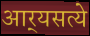
आर्यसत्ये